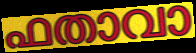
ഫതാവാ